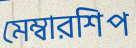
মেম্বারশিপ